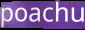
poachu